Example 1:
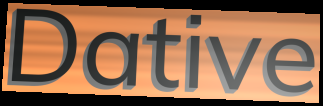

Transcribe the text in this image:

Dative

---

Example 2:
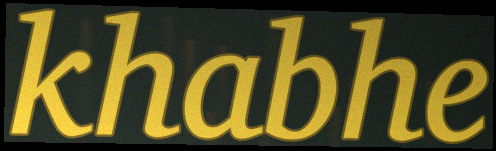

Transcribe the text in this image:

khabhe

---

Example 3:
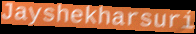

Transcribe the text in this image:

Jayshekharsuri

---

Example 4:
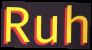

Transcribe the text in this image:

Ruh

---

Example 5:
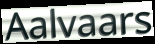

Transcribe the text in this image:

Aalvaars